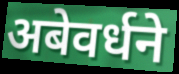
अबेवर्धने